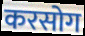
करसोग